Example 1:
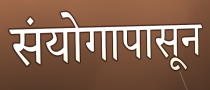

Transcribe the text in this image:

संयोगापासून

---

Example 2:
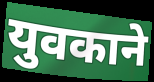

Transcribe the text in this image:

युवकाने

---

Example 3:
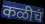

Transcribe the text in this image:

कळीचं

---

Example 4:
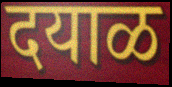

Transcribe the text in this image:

दयाळ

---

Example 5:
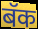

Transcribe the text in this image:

बॅक